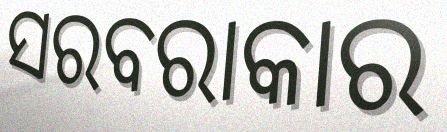
ସରବରାକାର